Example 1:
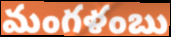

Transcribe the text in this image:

మంగళంబు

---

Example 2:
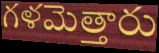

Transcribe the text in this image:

గళమెత్తారు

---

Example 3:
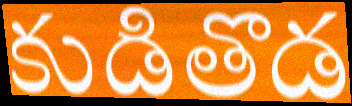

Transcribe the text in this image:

కుడితొడ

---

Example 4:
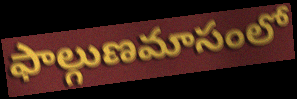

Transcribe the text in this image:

ఫాల్గుణమాసంలో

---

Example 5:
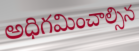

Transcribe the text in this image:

అధిగమించాల్సిన